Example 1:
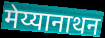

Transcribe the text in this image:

मेय्यानाथन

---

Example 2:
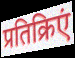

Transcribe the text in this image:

प्रतिक्रिएं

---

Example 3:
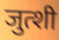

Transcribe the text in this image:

जुत्शी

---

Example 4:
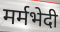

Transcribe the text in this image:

मर्मभेदी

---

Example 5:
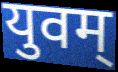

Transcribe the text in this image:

युवम्